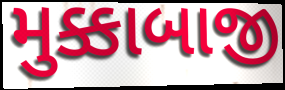
મુક્કાબાજી